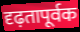
दृढ़तापूर्वक